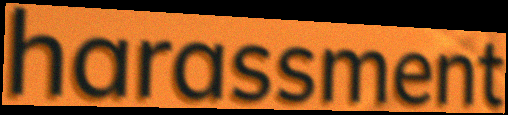
harassment